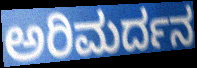
ಅರಿಮರ್ದನ